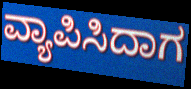
ವ್ಯಾಪಿಸಿದಾಗ